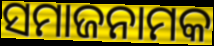
ସମାଜନାମକ